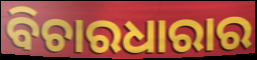
ବିଚାରଧାରାର